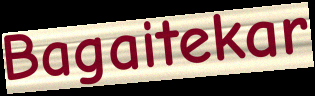
Bagaitekar